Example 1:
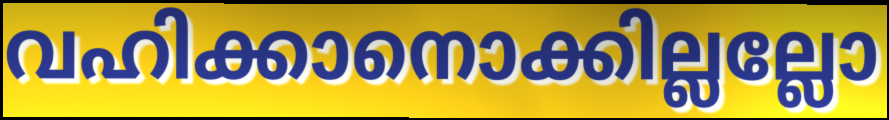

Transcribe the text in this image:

വഹിക്കാനൊക്കില്ലല്ലോ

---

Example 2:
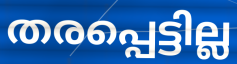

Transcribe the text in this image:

തരപ്പെട്ടില്ല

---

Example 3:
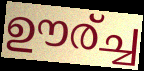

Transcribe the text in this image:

ഊര്ച്ച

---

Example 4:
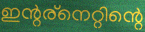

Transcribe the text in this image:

ഇന്റര്നെറ്റിന്റെ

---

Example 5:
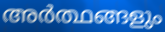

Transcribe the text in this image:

അർത്ഥങ്ങളും